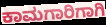
ಕಾಮಗಾರಿಗಾಗಿ